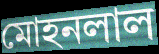
মোহনলাল